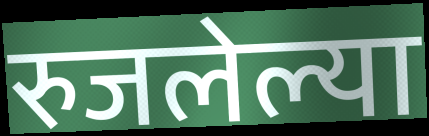
रुजलेल्या